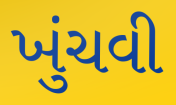
ખુંચવી